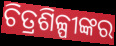
ଚିତ୍ରଶିଳ୍ପୀଙ୍କର